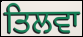
ਤਿਲਵਾ